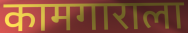
कामगाराला